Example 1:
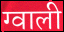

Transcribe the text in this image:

ग्वाली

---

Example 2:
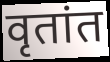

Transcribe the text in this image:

वृतांत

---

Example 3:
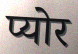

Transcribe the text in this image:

प्योर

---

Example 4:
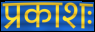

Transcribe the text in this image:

प्रकाशः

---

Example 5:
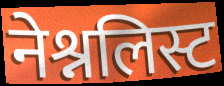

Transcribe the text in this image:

नेश्नलिस्ट